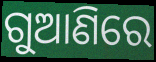
ଗୁଆଣିରେ